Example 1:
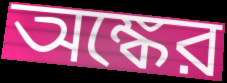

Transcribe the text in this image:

অঙ্কের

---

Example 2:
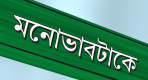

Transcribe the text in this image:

মনোভাবটাকে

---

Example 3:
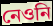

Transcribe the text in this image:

নেওনি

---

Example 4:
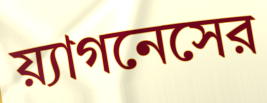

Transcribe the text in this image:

য়্যাগনেসের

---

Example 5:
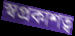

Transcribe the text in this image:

স্বপ্রকাশত্ব